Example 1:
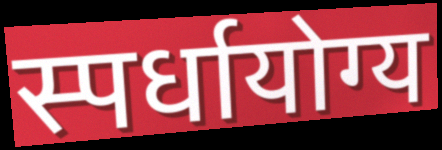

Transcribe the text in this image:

स्पर्धायोग्य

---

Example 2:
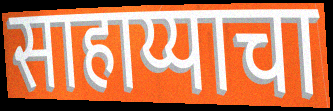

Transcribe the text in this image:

साहाय्याचा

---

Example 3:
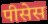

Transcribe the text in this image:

पीसेस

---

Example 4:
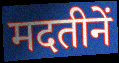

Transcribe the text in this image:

मदतीनें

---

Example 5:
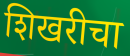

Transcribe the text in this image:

शिखरीचा